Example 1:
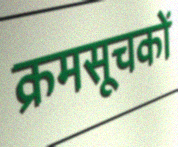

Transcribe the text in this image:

क्रमसूचकों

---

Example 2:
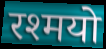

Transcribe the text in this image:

रश्मयो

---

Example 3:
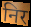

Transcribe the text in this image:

निर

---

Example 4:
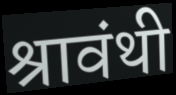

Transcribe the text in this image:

श्रावंथी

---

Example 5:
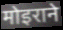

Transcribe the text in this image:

मोइराने